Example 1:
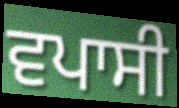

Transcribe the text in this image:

ਵਪਾਸੀ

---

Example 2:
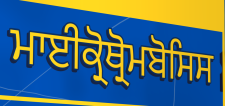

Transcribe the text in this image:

ਮਾਈਕ੍ਰੋਥ੍ਰੋਮਬੋਸਿਸ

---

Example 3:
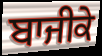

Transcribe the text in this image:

ਬਾਜੀਕੇ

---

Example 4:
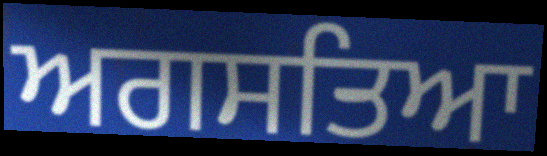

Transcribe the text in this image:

ਅਗਸਤਿਆ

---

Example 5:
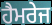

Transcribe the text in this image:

ਹੈਮਰੇਜ